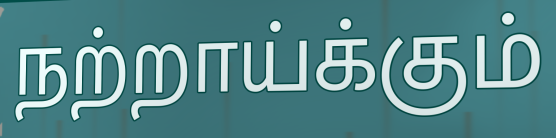
நற்றாய்க்கும்